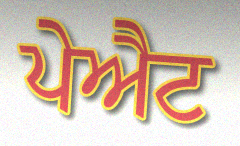
ਪੇਐਟ